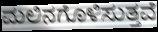
ಮಲಿನಗೊಳಿಸುತ್ತವೆ